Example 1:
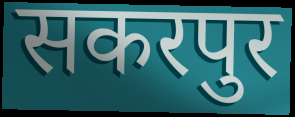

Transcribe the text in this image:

सकरपुर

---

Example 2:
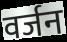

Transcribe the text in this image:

वर्जन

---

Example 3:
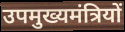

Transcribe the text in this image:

उपमुख्यमंत्रियों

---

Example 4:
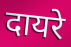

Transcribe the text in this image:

दायरे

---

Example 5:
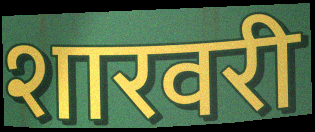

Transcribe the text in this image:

शारवरी